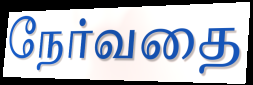
நேர்வதை